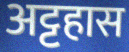
अट्टहास